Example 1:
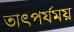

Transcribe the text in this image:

তাৎপর্যময়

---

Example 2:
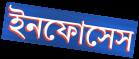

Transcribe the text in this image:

ইনফোসেস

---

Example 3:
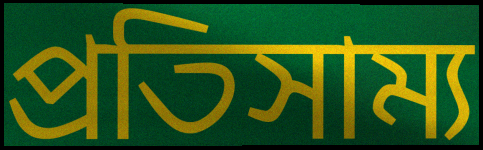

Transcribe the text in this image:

প্রতিসাম্য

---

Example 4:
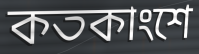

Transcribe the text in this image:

কতকাংশে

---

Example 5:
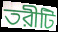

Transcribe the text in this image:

তরীটি